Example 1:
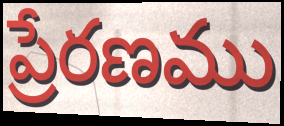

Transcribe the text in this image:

ప్రేరణము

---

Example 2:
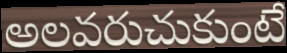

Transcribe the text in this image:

అలవరుచుకుంటే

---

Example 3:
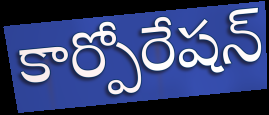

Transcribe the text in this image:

కార్పోరేషన్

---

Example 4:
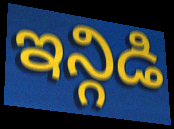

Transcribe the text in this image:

ఇన్గిడి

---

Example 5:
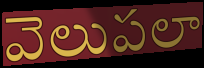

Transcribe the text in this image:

వెలుపలా